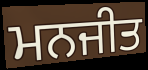
ਮਨਜੀਤ